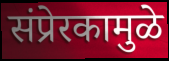
संप्रेरकामुळे